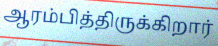
ஆரம்பித்திருக்கிறார்